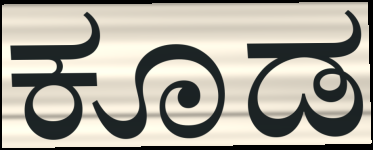
ಕೂಡ